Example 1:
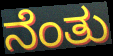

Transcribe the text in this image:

ನೆಂತು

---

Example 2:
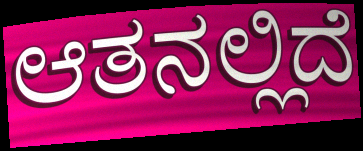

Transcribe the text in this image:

ಆತನಲ್ಲಿದೆ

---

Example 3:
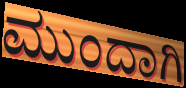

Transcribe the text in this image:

ಮುಂದಾಗಿ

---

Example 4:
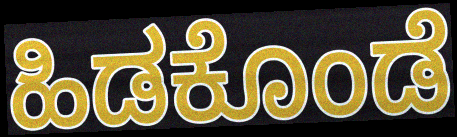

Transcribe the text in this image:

ಹಿಡಕೊಂಡೆ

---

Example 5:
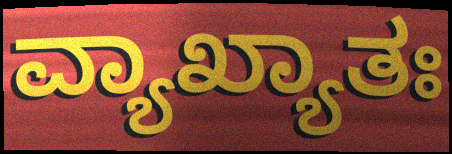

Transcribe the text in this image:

ವ್ಯಾಖ್ಯಾತಃ